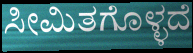
ಸೀಮಿತಗೊಳ್ಳದೆ